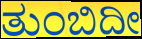
ತುಂಬಿದೀ